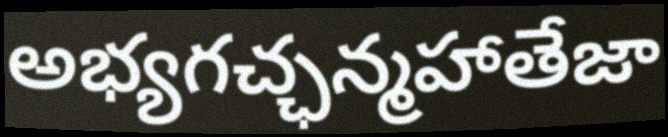
అభ్యగచ్ఛన్మహాతేజా